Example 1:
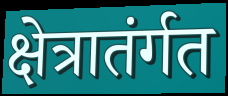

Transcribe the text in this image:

क्षेत्रातंर्गत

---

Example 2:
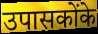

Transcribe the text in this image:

उपासकोंके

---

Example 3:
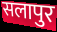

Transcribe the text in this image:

सलापुर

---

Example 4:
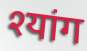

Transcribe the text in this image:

श्यांग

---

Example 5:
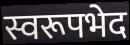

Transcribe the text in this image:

स्वरूपभेद